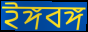
ইঙ্গবঙ্গ